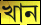
খান